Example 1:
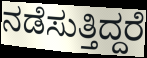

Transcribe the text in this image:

ನಡೆಸುತ್ತಿದ್ದರೆ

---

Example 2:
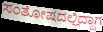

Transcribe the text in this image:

ಸಂತೋಷದಲ್ಲಿದ್ದಾಗ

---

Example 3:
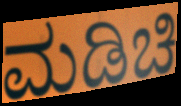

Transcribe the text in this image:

ಮಡಿಚಿ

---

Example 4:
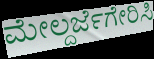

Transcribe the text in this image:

ಮೇಲ್ದರ್ಜೆಗೇರಿಸಿ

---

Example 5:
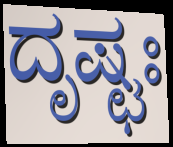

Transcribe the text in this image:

ದೃಷ್ಟಃ